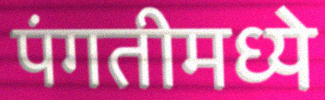
पंगतीमध्ये